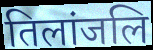
तिलांजलि